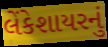
લેંકેશાયરનું